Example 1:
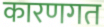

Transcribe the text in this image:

कारणगत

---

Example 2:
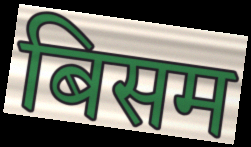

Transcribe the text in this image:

बिसम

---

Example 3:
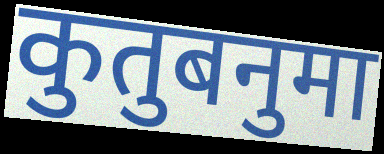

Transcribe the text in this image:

कुतुबनुमा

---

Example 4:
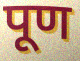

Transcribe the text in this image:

पूण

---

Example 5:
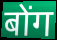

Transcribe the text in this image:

बोंग